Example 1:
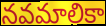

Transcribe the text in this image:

నవమాలికా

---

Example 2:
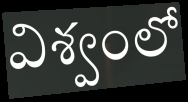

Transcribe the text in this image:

విశ్వంలో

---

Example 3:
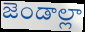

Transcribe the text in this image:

జెండాల్లా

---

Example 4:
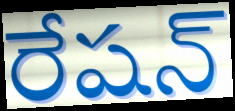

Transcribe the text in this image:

రేషన్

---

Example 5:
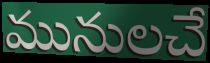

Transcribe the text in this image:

మునులచే